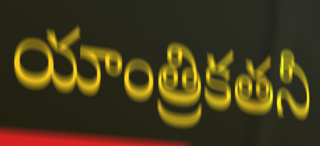
యాంత్రికతనీ